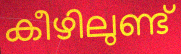
കീഴിലുണ്ട്